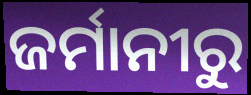
ଜର୍ମାନୀରୁ